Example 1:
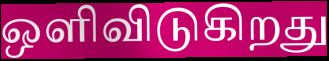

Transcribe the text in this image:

ஒளிவிடுகிறது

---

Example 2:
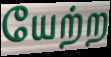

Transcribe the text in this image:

யேற்ற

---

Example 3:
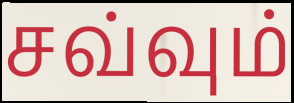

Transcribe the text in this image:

சவ்வும்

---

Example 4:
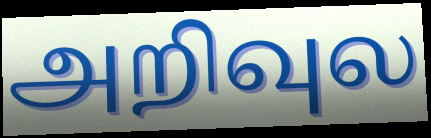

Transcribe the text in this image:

அறிவுல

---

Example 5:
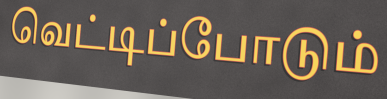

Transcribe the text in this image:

வெட்டிப்போடும்